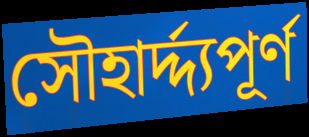
সৌহার্দ্দ্যপূর্ণ